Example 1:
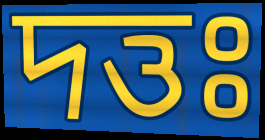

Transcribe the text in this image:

দত্তঃ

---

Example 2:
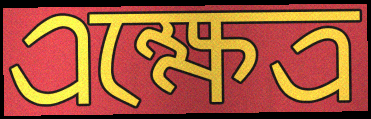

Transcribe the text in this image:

এক্ষেত্র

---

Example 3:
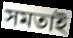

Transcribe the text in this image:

সমতাই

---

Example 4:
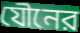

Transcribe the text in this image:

যৌনের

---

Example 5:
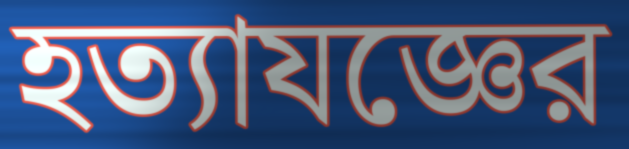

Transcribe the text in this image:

হত্যাযজ্ঞের